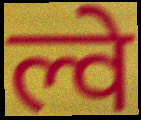
ल्वे